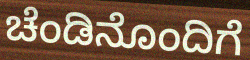
ಚೆಂಡಿನೊಂದಿಗೆ